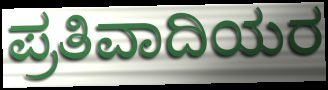
ಪ್ರತಿವಾದಿಯರ